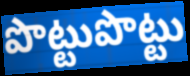
పొట్టుపొట్టు